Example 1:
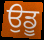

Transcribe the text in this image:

ਉਡੂ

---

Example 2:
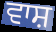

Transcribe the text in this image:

ਵਾਸ਼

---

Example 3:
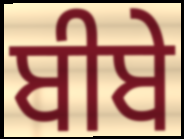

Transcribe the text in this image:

ਬੀਬੇ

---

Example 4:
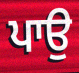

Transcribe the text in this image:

ਪਾਉ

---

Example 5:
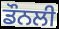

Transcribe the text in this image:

ਡੌਨਲੀ